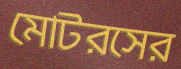
মোটরসের